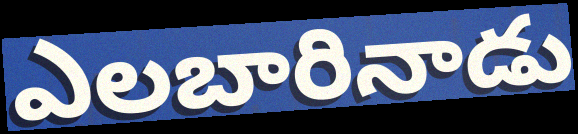
ఎలబారినాడు